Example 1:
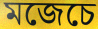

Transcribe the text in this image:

মজেচে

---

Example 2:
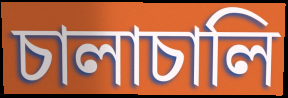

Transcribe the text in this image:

চালাচালি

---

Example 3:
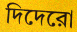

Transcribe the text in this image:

দিদেরো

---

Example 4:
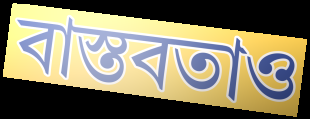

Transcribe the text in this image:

বাস্তবতাও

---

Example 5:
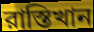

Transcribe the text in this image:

রাস্তিখান